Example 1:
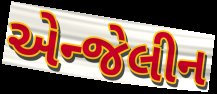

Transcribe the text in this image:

એન્જેલીન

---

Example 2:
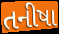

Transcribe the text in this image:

તનીષા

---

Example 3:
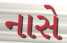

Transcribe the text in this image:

નાસે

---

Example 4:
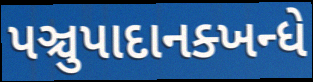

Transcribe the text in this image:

પઞ્ચુપાદાનક્ખન્ધે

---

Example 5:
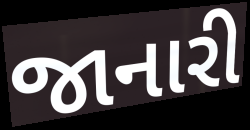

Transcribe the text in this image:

જાનારી